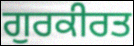
ਗੁਰਕੀਰਤ